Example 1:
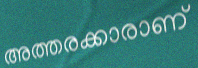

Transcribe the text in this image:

അത്തരക്കാരാണ്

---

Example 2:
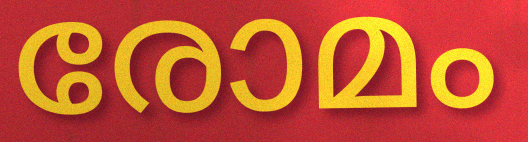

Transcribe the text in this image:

രോമം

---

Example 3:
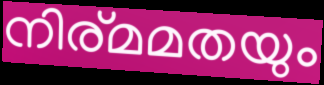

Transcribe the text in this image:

നിര്മമതയും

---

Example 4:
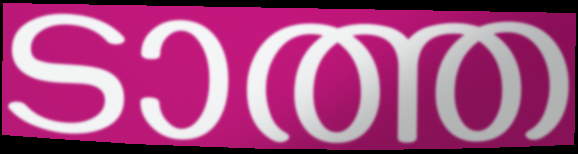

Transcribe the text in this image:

ടാത്ത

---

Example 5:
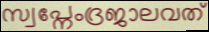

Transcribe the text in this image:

സ്വപ്നേംദ്രജാലവത്